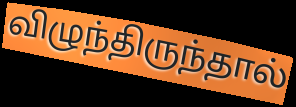
விழுந்திருந்தால்